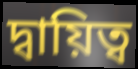
দ্বায়িত্ব